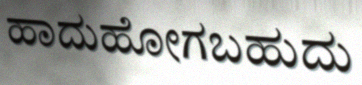
ಹಾದುಹೋಗಬಹುದು